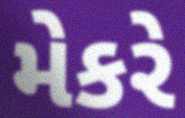
મેકરે